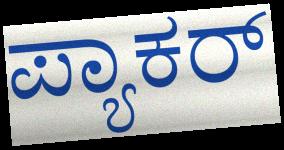
ಪ್ಯಾಕರ್